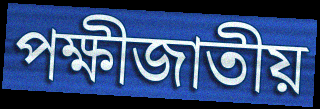
পক্ষীজাতীয়